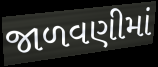
જાળવણીમાં